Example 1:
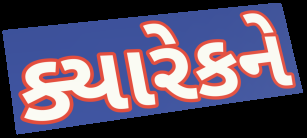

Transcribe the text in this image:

ક્યારેકને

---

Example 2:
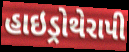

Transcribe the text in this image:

હાઇડ્રોથેરાપી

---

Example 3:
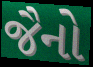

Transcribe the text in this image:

જૈનો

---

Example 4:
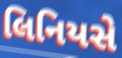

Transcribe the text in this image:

લિનિયસે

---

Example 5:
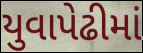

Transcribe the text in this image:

યુવાપેઢીમાં